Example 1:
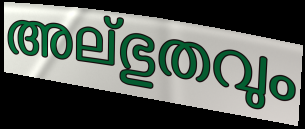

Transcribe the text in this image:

അല്ഭുതവും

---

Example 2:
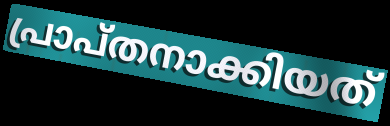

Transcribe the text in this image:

പ്രാപ്തനാക്കിയത്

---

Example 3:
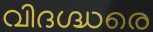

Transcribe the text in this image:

വിദഗ്ദ്ധരെ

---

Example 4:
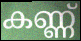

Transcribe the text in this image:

കണ്ണ്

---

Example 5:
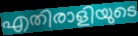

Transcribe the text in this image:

എതിരാളിയുടെ